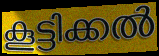
കൂട്ടിക്കൽ